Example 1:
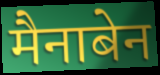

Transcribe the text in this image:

मैनाबेन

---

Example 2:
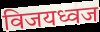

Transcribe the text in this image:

विजयध्वज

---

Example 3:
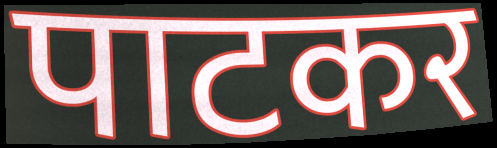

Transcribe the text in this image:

पाटकर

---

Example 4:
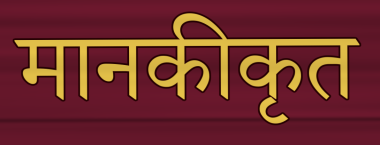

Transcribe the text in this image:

मानकीकृत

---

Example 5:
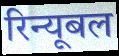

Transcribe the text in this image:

रिन्यूबल